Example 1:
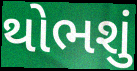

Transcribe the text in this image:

થોભશું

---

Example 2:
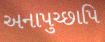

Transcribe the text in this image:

અનાપુચ્છાપિ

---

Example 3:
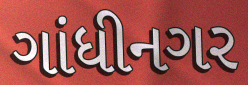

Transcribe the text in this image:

ગાંધીનગર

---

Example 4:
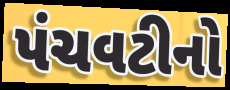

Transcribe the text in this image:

પંચવટીનો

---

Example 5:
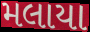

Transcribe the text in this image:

મલાયા